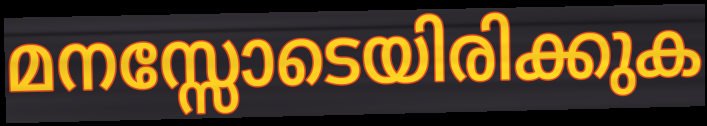
മനസ്സോടെയിരിക്കുക